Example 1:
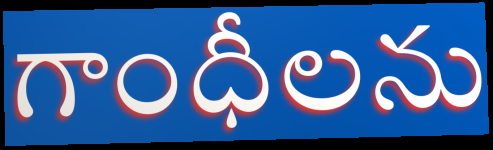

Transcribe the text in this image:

గాంధీలను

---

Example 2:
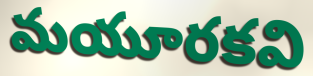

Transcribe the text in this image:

మయూరకవి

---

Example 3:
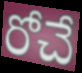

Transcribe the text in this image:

రోచే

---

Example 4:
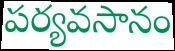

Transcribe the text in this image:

పర్యవసానం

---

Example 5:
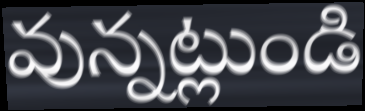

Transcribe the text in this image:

వున్నట్లుండి